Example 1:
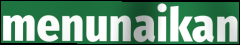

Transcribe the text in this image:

menunaikan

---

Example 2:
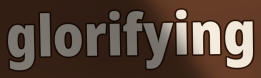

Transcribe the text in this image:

glorifying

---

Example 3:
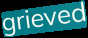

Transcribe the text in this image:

grieved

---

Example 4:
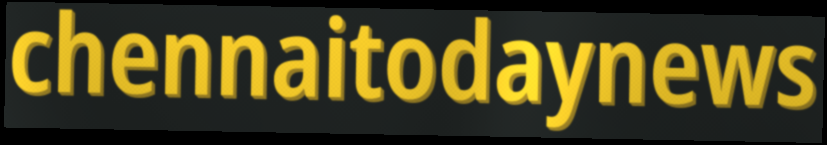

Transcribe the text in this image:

chennaitodaynews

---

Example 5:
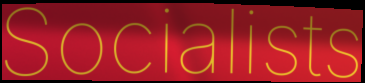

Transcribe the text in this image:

Socialists